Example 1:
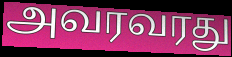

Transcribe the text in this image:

அவரவரது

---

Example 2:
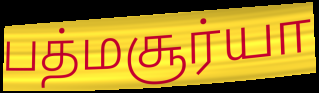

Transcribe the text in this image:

பத்மசூர்யா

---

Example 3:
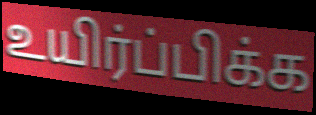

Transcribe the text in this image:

உயிர்ப்பிக்க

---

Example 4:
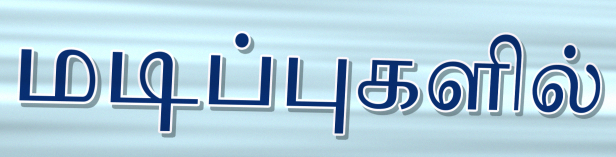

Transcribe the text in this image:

மடிப்புகளில்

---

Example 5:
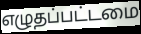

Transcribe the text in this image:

எழுதப்பட்டமை